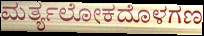
ಮರ್ತ್ಯಲೋಕದೊಳಗಣ